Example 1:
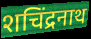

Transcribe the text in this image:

शचिंद्रनाथ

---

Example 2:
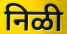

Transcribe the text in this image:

निळी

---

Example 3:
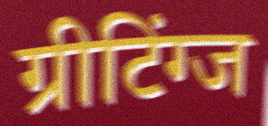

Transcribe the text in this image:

ग्रीटिंग्ज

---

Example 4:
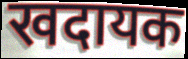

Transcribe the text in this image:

खदायक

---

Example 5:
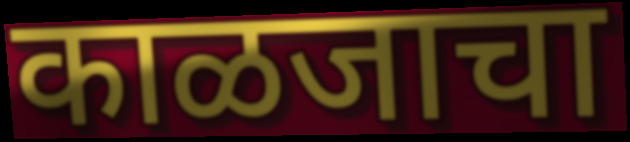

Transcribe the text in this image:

काळजाचा